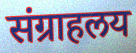
संग्राहलय